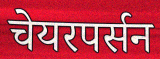
चेयरपर्सन